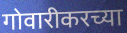
गोवारीकरच्या